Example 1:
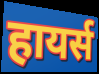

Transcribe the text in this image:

हायर्स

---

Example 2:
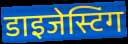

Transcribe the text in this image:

डाइजेस्टिंग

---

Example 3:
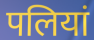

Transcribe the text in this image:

पलियां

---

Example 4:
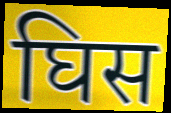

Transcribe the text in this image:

घिस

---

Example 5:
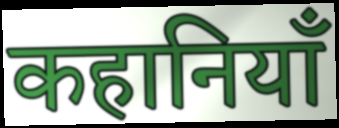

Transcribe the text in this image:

कहानियाँ